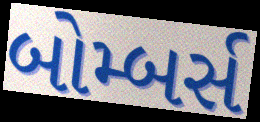
બોમ્બર્સ